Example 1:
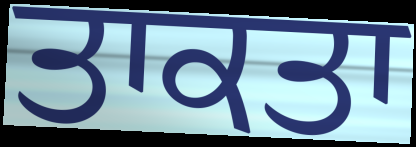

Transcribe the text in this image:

ਤਾਕਤਾ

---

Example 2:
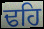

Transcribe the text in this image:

ਢਹਿ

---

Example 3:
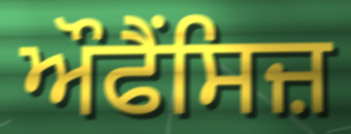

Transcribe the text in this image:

ਔਫੈਂਸਿਜ਼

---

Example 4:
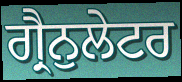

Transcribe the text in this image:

ਗ੍ਰੈਨੁਲੇਟਰ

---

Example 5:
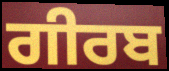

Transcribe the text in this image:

ਗੀਰਬ